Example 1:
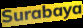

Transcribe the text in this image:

Surabaya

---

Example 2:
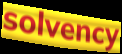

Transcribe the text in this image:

solvency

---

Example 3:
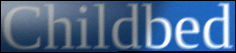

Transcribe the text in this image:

Childbed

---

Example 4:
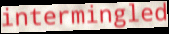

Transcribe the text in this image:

intermingled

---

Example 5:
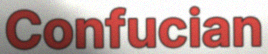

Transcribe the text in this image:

Confucian